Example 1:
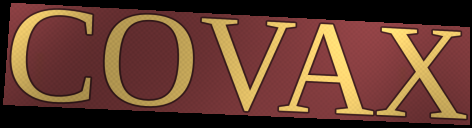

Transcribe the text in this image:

COVAX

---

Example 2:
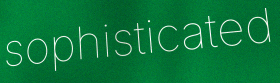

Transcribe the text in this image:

sophisticated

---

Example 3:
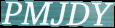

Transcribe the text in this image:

PMJDY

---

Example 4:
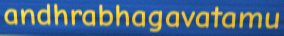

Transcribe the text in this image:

andhrabhagavatamu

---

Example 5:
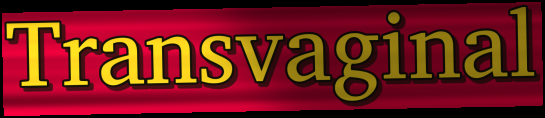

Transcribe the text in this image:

Transvaginal